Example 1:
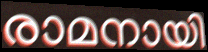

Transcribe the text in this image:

രാമനായി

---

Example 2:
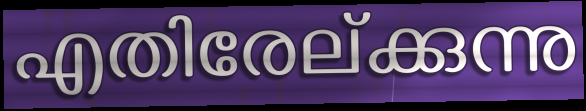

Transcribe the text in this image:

എതിരേല്ക്കുന്നു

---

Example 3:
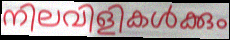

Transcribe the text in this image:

നിലവിളികൾക്കും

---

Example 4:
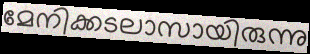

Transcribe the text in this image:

മേനിക്കടലാസായിരുന്നു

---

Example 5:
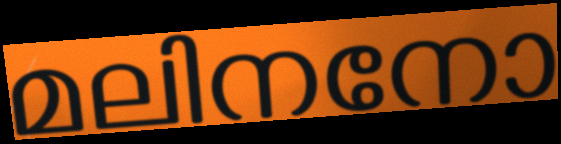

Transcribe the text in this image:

മലിനനോ